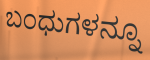
ಬಂಧುಗಳನ್ನೂ